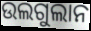
ଉଲଗୁଲାନ